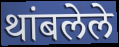
थांबलेले